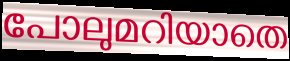
പോലുമറിയാതെ